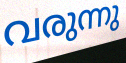
വരുന്നു